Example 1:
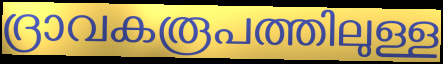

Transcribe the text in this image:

ദ്രാവകരൂപത്തിലുള്ള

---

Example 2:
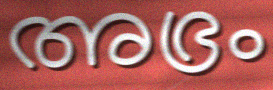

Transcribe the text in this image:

അഭ്രം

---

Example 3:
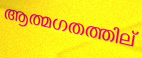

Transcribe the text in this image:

ആത്മഗതത്തില്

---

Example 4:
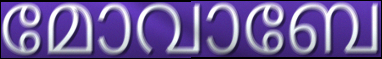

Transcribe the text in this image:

മോവാബേ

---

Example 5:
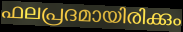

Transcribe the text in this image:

ഫലപ്രദമായിരിക്കും